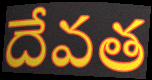
దేవత